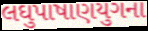
લઘુપાષાણયુગના